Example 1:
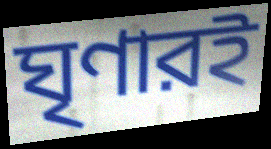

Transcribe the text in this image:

ঘৃণারই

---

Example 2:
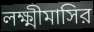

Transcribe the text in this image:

লক্ষ্মীমাসির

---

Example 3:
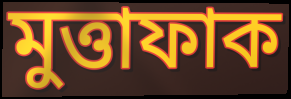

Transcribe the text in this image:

মুত্তাফাক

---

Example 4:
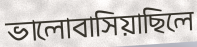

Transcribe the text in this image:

ভালোবাসিয়াছিলে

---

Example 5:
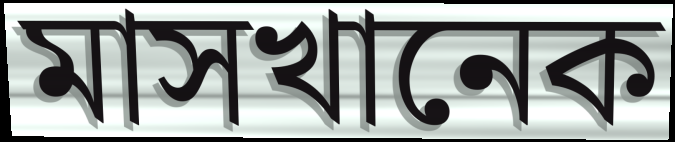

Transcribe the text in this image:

মাসখানেক